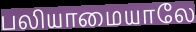
பலியாமையாலே